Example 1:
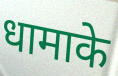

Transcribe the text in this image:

धामाके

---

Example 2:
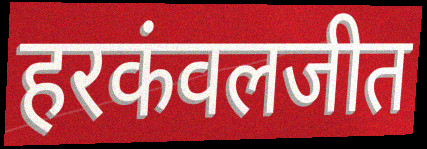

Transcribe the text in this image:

हरकंवलजीत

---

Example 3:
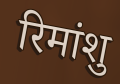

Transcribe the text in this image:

रिमांशु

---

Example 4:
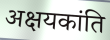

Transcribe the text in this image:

अक्षयकांति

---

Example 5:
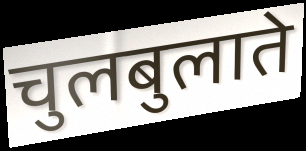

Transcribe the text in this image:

चुलबुलाते